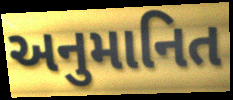
અનુમાનિત